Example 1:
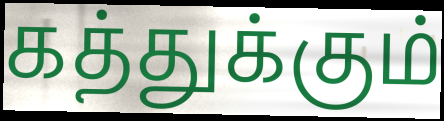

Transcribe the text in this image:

கத்துக்கும்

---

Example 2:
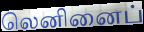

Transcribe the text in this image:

லெனினைப்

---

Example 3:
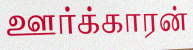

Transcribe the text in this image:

ஊர்க்காரன்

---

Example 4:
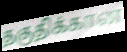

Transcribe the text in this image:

தகுதிக்கான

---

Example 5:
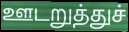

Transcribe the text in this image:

ஊடறுத்துச்